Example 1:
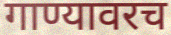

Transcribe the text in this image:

गाण्यावरच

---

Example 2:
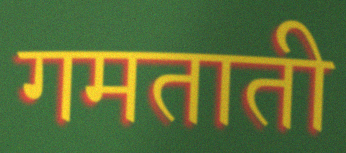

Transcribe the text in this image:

गमताती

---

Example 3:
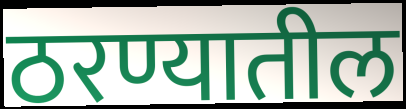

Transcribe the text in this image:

ठरण्यातील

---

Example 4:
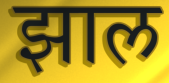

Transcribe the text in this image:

झाल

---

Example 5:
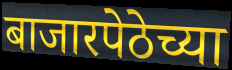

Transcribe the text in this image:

बाजारपेठेच्या